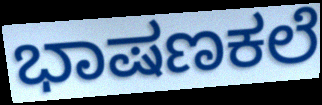
ಭಾಷಣಕಲೆ